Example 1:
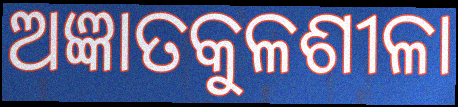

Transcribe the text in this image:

ଅଜ୍ଞାତକୁଳଶୀଳା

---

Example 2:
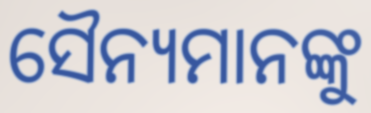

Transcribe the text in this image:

ସୈନ୍ୟମାନଙ୍କୁ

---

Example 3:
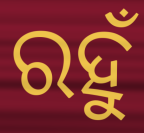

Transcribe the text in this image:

ରହୁଁ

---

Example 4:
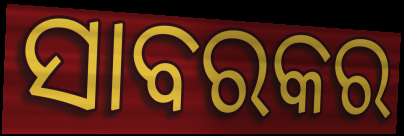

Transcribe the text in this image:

ସାବରକର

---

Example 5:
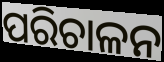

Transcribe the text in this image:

ପରିଚାଳନ